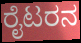
ರೈಟರನ